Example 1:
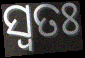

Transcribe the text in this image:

ସ୍ଵତଃ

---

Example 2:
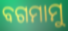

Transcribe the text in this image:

ବଗମାମୁ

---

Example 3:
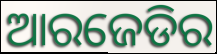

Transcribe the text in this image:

ଆରଜେଡିର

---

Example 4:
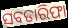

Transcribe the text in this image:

ସବଡାରିଫା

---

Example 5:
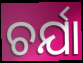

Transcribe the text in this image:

ଚର୍ଯା